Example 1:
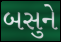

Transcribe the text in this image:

બસુને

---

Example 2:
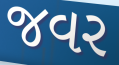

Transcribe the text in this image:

જવર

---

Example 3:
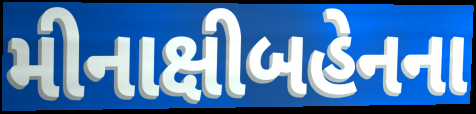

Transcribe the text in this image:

મીનાક્ષીબહેનના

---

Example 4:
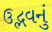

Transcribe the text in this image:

ઉદ્ભવનું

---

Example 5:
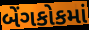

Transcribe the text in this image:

બેંગકોકમાં